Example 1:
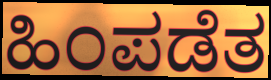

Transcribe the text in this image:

ಹಿಂಪಡೆತ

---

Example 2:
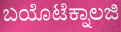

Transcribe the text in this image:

ಬಯೊಟೆಕ್ನಾಲಜಿ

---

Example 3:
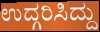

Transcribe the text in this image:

ಉದ್ಗರಿಸಿದ್ದು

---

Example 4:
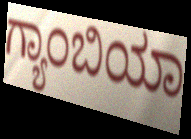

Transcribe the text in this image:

ಗ್ಯಾಂಬಿಯಾ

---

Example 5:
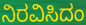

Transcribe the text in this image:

ನಿರವಿಸಿದಂ